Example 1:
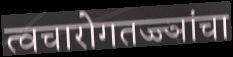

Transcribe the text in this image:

त्वचारोगतज्ज्ञांचा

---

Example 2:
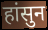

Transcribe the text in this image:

हांसुन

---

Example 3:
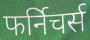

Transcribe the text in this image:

फर्निचर्स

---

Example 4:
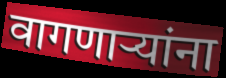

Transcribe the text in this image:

वागणार्‍यांना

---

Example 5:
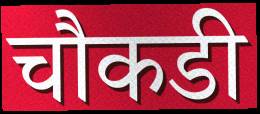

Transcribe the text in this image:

चौकडी